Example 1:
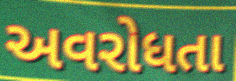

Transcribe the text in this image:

અવરોધતા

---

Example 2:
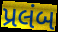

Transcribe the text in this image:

પ્રલંબ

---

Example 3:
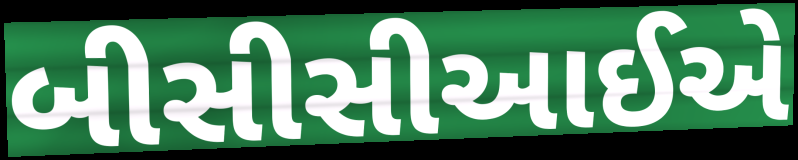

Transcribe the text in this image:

બીસીસીઆઈએ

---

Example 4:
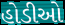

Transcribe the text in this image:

હોડીઓ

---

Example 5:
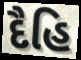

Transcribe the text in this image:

દૈહિ